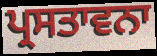
ਪ੍ਰਸਤਾਵਨਾ